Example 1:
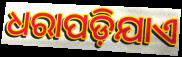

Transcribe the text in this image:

ଧରାପଡ଼ିଯାଏ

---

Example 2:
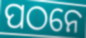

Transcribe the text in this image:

ପଠନେ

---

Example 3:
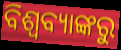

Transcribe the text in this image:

ବିଶ୍ୱବ୍ୟାଙ୍କରୁ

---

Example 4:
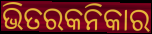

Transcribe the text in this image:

ଭିତରକନିକାର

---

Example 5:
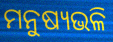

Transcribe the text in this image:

ମନୁଷ୍ୟଭଳି